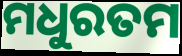
ମଧୁରତମ